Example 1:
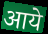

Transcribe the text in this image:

आये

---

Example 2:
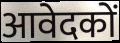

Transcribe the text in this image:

आवेदकों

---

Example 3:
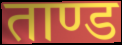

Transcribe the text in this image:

ताण्ड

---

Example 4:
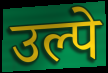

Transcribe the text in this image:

उल्पे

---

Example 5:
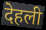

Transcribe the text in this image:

देहली